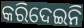
କରିଦେଇନି